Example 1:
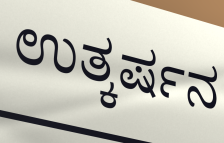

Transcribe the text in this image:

ಉತ್ಕರ್ಷನ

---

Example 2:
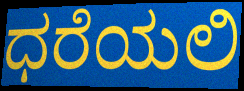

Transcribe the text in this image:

ಧರೆಯಲಿ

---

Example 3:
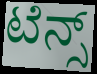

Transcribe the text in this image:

ಟೆನ್ಸ್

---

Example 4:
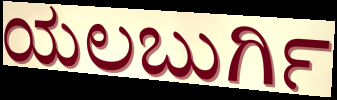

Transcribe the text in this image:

ಯಲಬುರ್ಗಿ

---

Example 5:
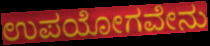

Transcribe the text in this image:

ಉಪಯೋಗವೇನು